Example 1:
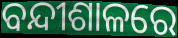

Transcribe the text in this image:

ବନ୍ଦୀଶାଳରେ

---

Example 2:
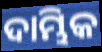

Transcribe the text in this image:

ଦାମ୍ଭିକ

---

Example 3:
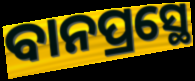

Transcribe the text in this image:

ବାନପ୍ରସ୍ଥେ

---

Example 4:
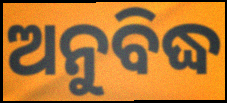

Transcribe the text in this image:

ଅନୁବିଦ୍ଧ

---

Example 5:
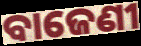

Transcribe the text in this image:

ବାଜେଣୀ